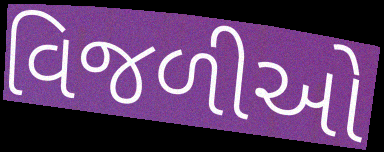
વિજળીઓ